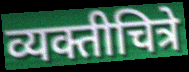
व्यक्तीचित्रे